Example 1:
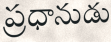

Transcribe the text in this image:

ప్రధానుడు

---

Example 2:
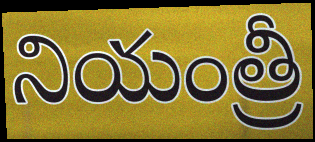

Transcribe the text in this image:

నియంత్రీ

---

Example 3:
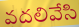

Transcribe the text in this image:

వదలివేసి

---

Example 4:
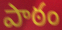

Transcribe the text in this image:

పాఠం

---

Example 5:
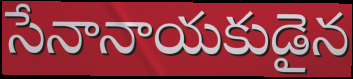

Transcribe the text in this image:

సేనానాయకుడైన